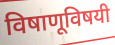
विषाणूविषयी